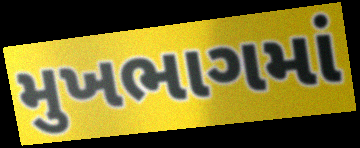
મુખભાગમાં